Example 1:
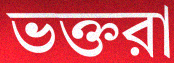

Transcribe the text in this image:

ভক্তরা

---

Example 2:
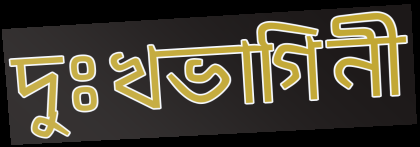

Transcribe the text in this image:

দুঃখভাগিনী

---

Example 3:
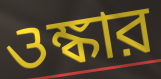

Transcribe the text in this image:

ওঙ্কার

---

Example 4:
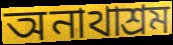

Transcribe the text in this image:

অনাথাশ্রম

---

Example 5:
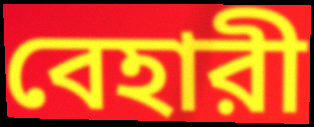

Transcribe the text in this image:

বেহারী